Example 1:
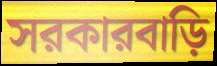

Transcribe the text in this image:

সরকারবাড়ি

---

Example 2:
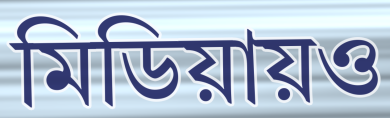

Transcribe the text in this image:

মিডিয়ায়ও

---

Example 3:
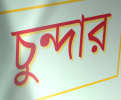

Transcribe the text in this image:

চুন্দার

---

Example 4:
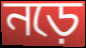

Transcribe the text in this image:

নড়ে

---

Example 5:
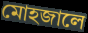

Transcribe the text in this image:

মোহজালে